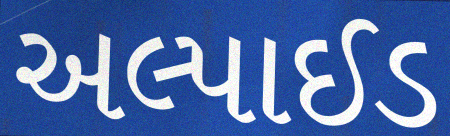
અલ્પાઈડ